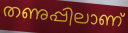
തണുപ്പിലാണ്